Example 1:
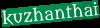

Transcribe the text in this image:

kuzhanthai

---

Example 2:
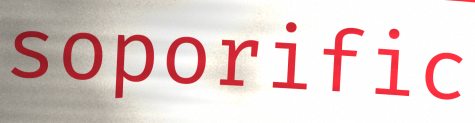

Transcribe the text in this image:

soporific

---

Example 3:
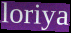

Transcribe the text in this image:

loriya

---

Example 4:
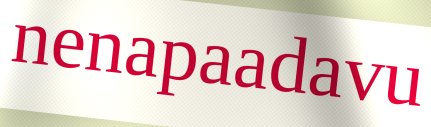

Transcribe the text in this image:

nenapaadavu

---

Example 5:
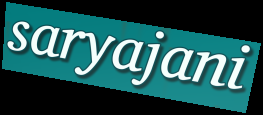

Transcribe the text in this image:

saryajani